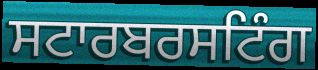
ਸਟਾਰਬਰਸਟਿੰਗ